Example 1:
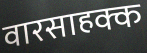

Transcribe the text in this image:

वारसाहक्क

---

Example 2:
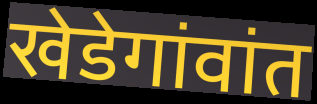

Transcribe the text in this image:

खेडेगांवांत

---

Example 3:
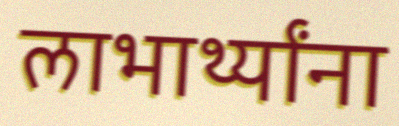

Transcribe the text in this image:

लाभार्थ्यांना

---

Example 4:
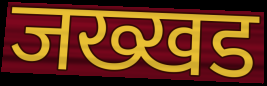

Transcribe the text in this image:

जख्खड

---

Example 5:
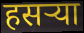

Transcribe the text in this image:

हसऱ्या